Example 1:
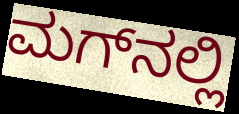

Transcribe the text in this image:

ಮಗ್‌ನಲ್ಲಿ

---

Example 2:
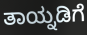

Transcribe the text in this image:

ತಾಯ್ನಡಿಗೆ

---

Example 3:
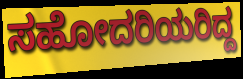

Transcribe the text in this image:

ಸಹೋದರಿಯರಿದ್ದ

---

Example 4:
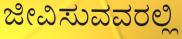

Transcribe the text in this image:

ಜೀವಿಸುವವರಲ್ಲಿ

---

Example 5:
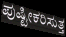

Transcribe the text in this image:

ಪುಷ್ಟೀಕರಿಸುತ್ತ